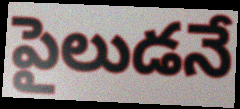
పైలుడనే